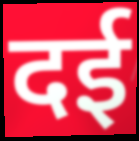
दई